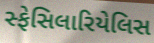
સ્ફેસિલારિયેલિસ